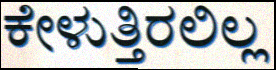
ಕೇಳುತ್ತಿರಲಿಲ್ಲ